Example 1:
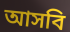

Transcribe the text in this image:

আসবি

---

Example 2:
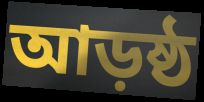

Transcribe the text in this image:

আড়ষ্ঠ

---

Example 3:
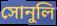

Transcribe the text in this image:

সোনুলি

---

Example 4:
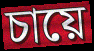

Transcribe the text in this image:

চায়ে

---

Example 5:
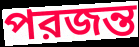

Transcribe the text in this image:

পরজন্ত